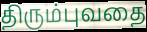
திரும்புவதை